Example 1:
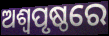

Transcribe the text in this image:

ଅଶ୍ଵପୃଷ୍ଠରେ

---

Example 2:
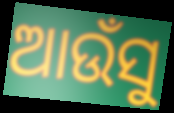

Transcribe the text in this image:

ଆଉଁସୁ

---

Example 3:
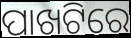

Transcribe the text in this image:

ପାଖଟିରେ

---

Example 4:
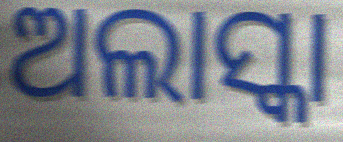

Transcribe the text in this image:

ଅଲାସ୍କା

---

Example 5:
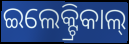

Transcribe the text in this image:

ଇଲେକ୍ଟ୍ରିକାଲ୍